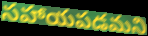
సహాయపడమని